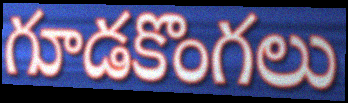
గూడకొంగలు